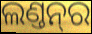
ଲଣ୍ତନ୍‌ର